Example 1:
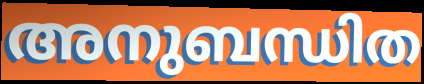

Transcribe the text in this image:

അനുബന്ധിത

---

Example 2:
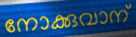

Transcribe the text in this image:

നോക്കുവാന്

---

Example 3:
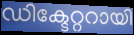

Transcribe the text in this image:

ഡിക്ടേറ്ററായി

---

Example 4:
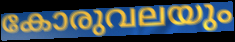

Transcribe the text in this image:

കോരുവലയും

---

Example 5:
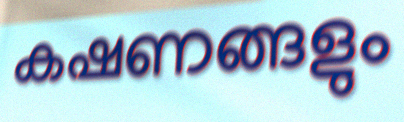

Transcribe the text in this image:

കഷണങ്ങളും